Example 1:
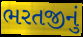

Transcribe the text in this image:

ભરતજીનું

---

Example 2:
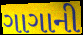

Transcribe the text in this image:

ગાગાની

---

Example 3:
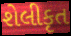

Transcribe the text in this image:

શેલીકૃત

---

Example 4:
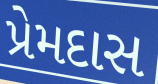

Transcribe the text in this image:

પ્રેમદાસ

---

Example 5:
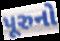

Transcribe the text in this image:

પૂરુનો